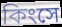
কিংসে